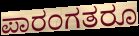
ಪಾರಂಗತರೂ